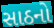
સાઠનો